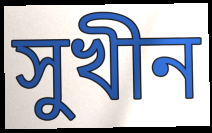
সুখীন